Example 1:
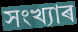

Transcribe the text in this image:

সংখ্যাৰ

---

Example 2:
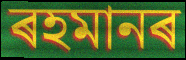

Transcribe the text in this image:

ৰহমানৰ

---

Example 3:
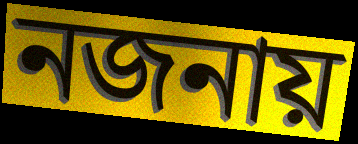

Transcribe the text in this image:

নজনায়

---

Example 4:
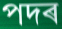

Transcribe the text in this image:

পদৰ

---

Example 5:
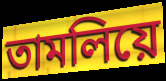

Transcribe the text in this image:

তামলিয়ে